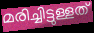
മരിച്ചിട്ടുള്ളത്